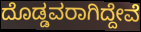
ದೊಡ್ಡವರಾಗಿದ್ದೇವೆ